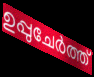
ഉപ്പുചേർത്ത്